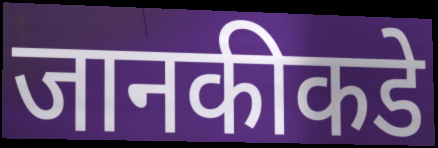
जानकीकडे